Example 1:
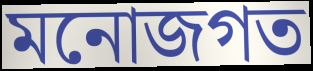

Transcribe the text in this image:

মনোজগত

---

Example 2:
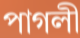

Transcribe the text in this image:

পাগলী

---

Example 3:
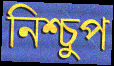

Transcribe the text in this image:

নিশ্চুপ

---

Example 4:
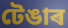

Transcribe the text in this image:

টেঙাৰ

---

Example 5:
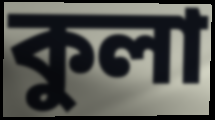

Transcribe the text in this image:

কুলা